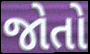
જોતો